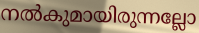
നൽകുമായിരുന്നല്ലോ